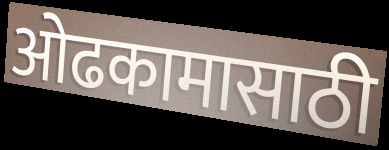
ओढकामासाठी